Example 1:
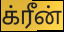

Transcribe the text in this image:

க்ரீன்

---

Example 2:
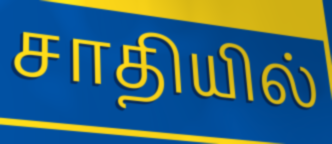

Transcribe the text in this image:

சாதியில்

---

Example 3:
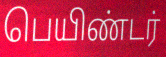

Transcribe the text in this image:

பெயிண்டர்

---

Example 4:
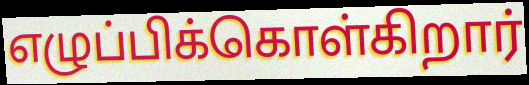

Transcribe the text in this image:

எழுப்பிக்கொள்கிறார்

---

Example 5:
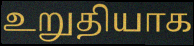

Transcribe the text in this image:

உறுதியாக